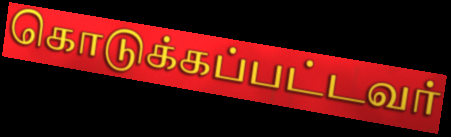
கொடுக்கப்பட்டவர்